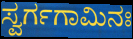
ಸ್ವರ್ಗಗಾಮಿನಃ